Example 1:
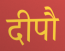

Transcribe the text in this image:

दीपौ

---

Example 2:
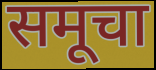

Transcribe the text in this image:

समूचा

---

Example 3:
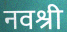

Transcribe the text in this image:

नवश्री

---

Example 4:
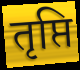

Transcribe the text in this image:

तृप्ति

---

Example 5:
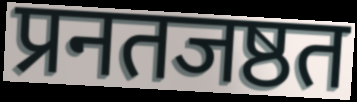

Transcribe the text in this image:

प्रनतजष्ठत